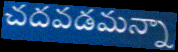
చదవడమన్నా